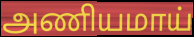
அணியமாய்